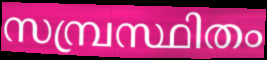
സമ്പ്രസ്ഥിതം